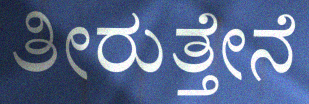
ತೀರುತ್ತೇನೆ